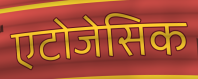
एटोजेसिक